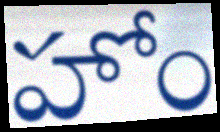
హోం